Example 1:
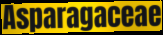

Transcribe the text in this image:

Asparagaceae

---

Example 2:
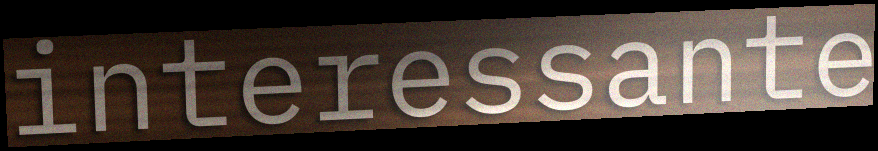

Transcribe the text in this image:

interessante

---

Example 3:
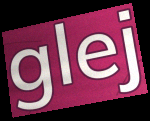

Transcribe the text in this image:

glej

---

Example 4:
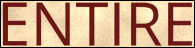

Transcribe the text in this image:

ENTIRE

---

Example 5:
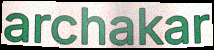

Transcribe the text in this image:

archakar